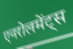
एनरोलमेंट्स